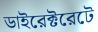
ডাইরেক্টরেটে